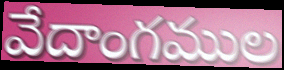
వేదాంగముల